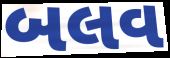
બલવ